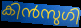
കിൻസുഗി